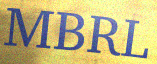
MBRL